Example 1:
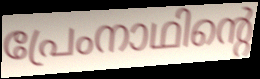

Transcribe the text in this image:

പ്രേംനാഥിന്റെ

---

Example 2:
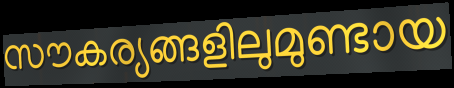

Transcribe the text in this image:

സൗകര്യങ്ങളിലുമുണ്ടായ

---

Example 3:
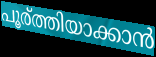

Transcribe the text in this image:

പൂര്ത്തിയാക്കാൻ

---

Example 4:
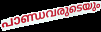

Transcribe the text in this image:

പാണ്ഡവരുടെയും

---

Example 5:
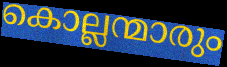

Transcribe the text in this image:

കൊല്ലന്മാരും